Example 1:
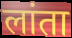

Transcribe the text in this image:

लांता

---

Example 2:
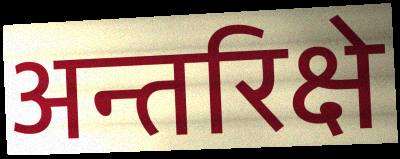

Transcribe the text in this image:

अन्तरिक्षे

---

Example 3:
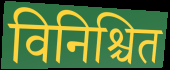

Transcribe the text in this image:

विनिश्चित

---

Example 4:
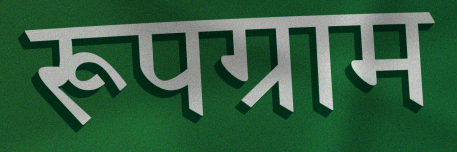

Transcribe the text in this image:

रूपग्राम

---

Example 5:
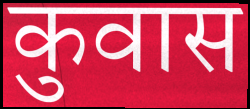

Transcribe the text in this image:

कुवास